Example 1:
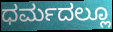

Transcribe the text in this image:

ಧರ್ಮದಲ್ಲೂ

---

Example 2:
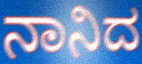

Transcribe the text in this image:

ನಾನಿದ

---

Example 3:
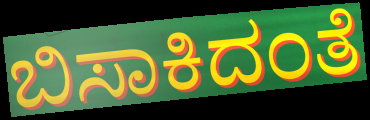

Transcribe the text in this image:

ಬಿಸಾಕಿದಂತೆ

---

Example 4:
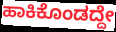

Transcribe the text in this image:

ಹಾಕಿಕೊಂಡದ್ದೇ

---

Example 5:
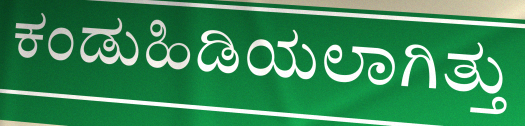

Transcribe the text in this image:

ಕಂಡುಹಿಡಿಯಲಾಗಿತ್ತು